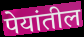
पेयांतील